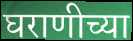
घराणीच्या